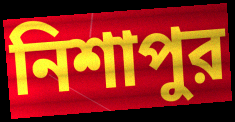
নিশাপুর